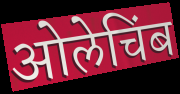
ओलेचिंब